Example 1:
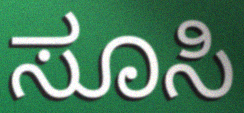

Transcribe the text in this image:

ಸೂಸಿ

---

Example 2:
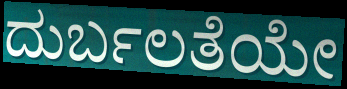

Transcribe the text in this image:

ದುರ್ಬಲತೆಯೇ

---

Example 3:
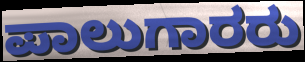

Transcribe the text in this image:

ಪಾಲುಗಾರರು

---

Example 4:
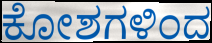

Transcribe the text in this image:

ಕೋಶಗಳಿಂದ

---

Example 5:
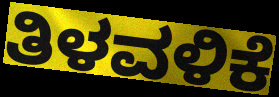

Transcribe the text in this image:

ತಿಳವಳಿಕೆ